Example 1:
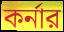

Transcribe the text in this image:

কর্নার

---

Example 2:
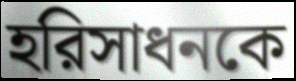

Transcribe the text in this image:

হরিসাধনকে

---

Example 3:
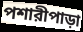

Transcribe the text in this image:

পশারীপাড়া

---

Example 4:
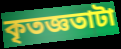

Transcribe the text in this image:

কৃতজ্ঞতাটা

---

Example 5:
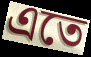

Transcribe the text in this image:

এতে